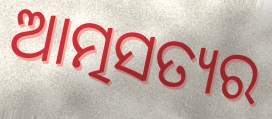
ଆତ୍ମସତ୍ୟର